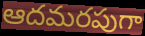
ఆదమరపుగా